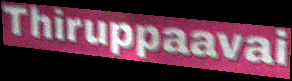
Thiruppaavai